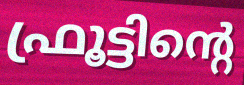
ഫ്രൂട്ടിന്റെ